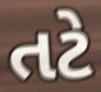
તટે